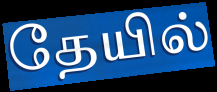
தேயில்